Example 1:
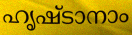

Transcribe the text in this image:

ഹൃഷ്ടാനാം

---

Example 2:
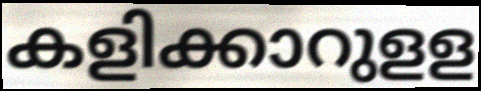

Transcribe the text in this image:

കളിക്കാറുളള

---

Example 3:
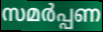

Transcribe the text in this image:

സമർപ്പണ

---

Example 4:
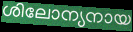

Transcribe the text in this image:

ശിലോന്യനായ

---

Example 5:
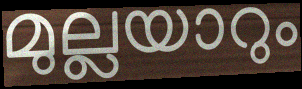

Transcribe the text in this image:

മുല്ലയാറും